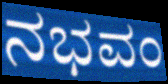
ನಭವಂ